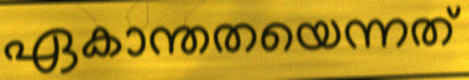
ഏകാന്തതയെന്നത്